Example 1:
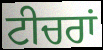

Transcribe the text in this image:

ਟੀਚਰਾਂ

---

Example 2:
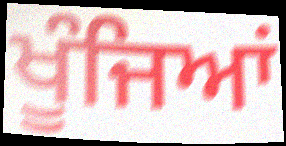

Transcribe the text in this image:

ਖੂੰਜਿਆਂ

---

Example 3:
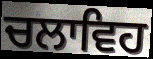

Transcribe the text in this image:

ਚਲਾਵਿਹ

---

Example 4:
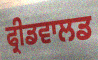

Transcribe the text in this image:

ਫ੍ਰੀਡਵਾਲਡ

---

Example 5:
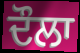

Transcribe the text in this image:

ਦੌਲਾ